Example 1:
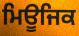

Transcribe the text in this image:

ਮਿਊਜਿਕ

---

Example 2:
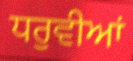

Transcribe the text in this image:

ਧਰੁਵੀਆਂ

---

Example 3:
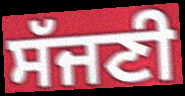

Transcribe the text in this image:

ਸੱਜਣੀ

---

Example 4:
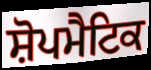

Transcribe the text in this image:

ਸ਼ੋਪਮੈਟਿਕ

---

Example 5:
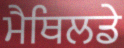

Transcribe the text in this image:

ਮੈਥਿਲਡੇ